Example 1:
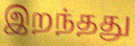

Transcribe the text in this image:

இறந்தது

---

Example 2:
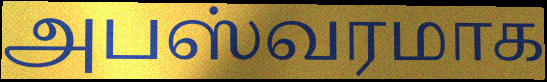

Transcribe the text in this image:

அபஸ்வரமாக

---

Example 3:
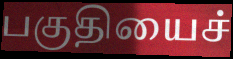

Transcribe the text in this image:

பகுதியைச்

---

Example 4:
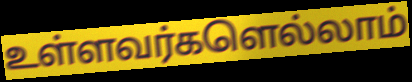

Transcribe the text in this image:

உள்ளவர்களெல்லாம்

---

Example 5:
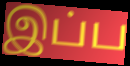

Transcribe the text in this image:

இப்ப